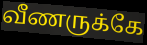
வீணருக்கே